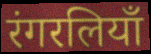
रंगरलियाँ